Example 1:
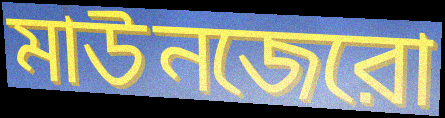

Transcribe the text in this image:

মাউনজেরো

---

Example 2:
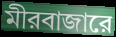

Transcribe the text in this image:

মীরবাজারে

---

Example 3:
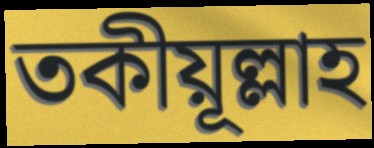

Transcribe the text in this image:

তকীয়ূল্লাহ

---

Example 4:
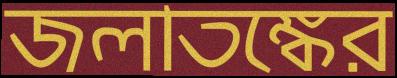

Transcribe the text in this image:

জলাতঙ্কের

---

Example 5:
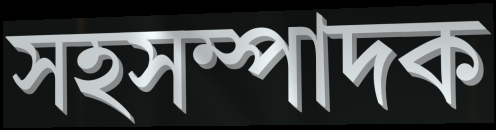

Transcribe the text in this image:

সহসম্পাদক